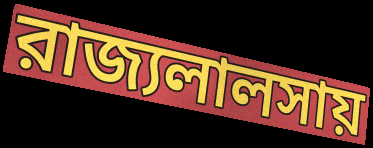
রাজ্যলালসায়